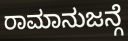
ರಾಮಾನುಜನ್ಗೆ